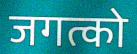
जगत्को